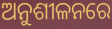
ଅନୁଶୀଳନରେ